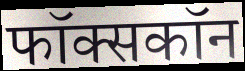
फॉक्सकॉन